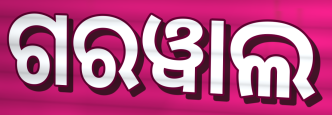
ଗରୱାଲ